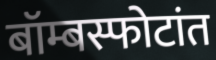
बॉम्बस्फोटांत